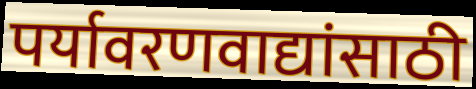
पर्यावरणवाद्यांसाठी